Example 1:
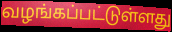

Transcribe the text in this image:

வழங்கப்பட்டுள்ளது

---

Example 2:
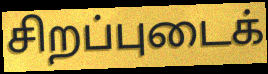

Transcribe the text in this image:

சிறப்புடைக்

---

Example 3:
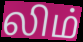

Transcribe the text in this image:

லிம்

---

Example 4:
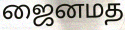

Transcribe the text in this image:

ஜைனமத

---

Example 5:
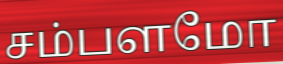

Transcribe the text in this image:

சம்பளமோ